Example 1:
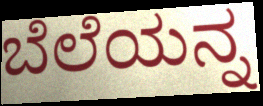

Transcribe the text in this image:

ಬೆಲೆಯನ್ನ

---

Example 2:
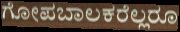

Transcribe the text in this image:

ಗೋಪಬಾಲಕರೆಲ್ಲರೂ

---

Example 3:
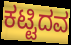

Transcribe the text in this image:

ಕಟ್ಟಿದವ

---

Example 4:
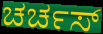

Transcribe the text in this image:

ಚರ್ಚಸ್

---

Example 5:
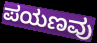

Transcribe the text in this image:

ಪಯಣವು